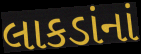
લાકડાંનાં